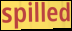
spilled